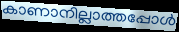
കാണാനില്ലാത്തപ്പോൾ